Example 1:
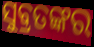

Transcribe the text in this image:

ସୁବ୍ରତଙ୍କର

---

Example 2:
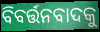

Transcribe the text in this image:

ବିବର୍ତ୍ତନବାଦକୁ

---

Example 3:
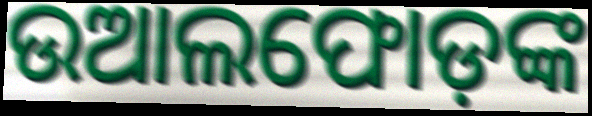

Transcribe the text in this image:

ଉଆଲଫୋଡ଼ଙ୍କ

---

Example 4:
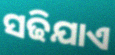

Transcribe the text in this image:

ସଢିଯାଏ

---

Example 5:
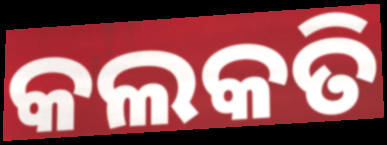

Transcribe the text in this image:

କଲକତି